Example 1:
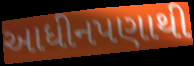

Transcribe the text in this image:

આધીનપણાથી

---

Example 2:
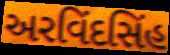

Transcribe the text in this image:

અરવિંદસિંહ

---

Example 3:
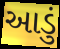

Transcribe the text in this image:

આડું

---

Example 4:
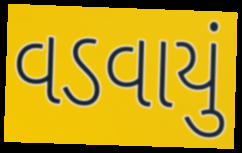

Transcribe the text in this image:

વડવાયું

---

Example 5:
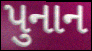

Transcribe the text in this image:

પુનાન